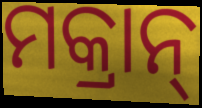
ମକ୍ରାନ୍